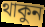
থাকুন